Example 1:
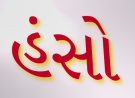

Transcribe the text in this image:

હંસો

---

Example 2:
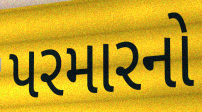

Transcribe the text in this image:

પરમારનો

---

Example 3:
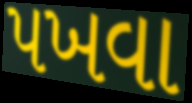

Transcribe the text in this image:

પખવા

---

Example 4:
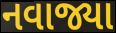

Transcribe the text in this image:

નવાજ્યા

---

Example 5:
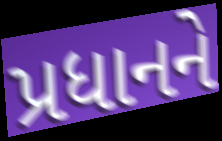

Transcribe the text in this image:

પ્રધાનને